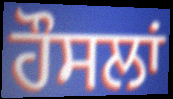
ਹੌਸਲਾਂ